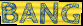
BANG